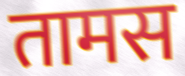
तामस